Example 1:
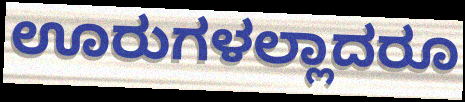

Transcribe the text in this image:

ಊರುಗಳಲ್ಲಾದರೂ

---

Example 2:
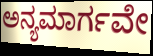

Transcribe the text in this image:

ಅನ್ಯಮಾರ್ಗವೇ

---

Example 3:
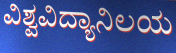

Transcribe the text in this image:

ವಿಶ್ವವಿದ್ಯಾನಿಲಯ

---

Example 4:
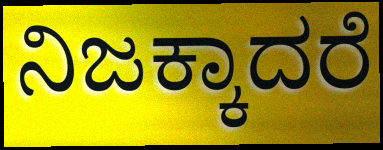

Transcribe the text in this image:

ನಿಜಕ್ಕಾದರೆ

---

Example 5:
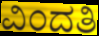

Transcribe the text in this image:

ವಿಂದತಿ